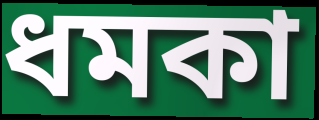
ধমকা